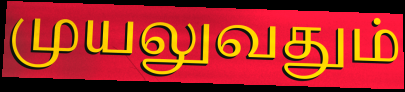
முயலுவதும்